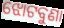
ଝୋଟବୁଣା